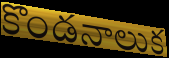
కొండనాలుక